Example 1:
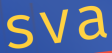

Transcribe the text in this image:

sva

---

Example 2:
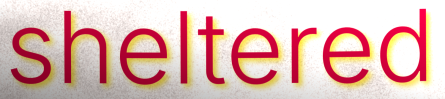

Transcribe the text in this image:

sheltered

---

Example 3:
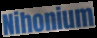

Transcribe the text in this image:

Nihonium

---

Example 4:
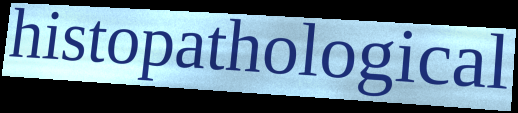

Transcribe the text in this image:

histopathological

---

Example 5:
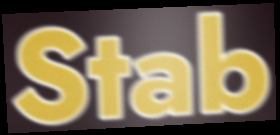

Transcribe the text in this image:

Stab